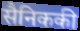
सैनिककी